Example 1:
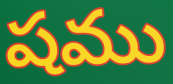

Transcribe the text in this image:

షము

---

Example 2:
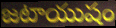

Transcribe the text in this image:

జటాయుషం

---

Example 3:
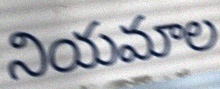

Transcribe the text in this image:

నియమాల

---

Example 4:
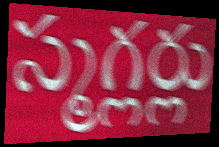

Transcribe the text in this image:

స్మగ్లర్లు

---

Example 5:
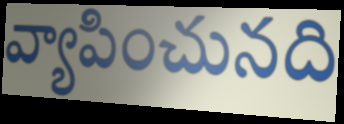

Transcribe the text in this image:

వ్యాపించునది